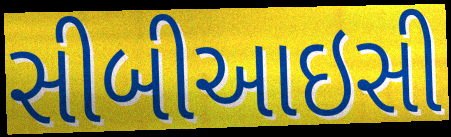
સીબીઆઇસી